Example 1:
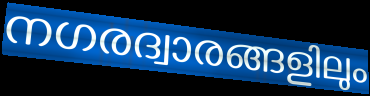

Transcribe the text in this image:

നഗരദ്വാരങ്ങളിലും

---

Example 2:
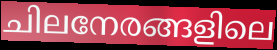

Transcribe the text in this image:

ചിലനേരങ്ങളിലെ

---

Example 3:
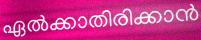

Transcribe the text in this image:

ഏൽക്കാതിരിക്കാൻ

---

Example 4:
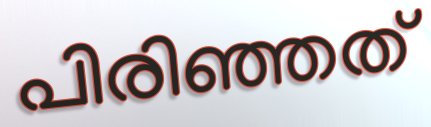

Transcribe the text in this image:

പിരിഞ്ഞത്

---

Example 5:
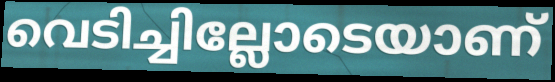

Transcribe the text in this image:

വെടിച്ചില്ലോടെയാണ്